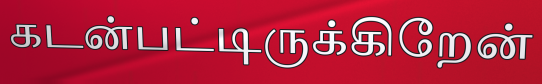
கடன்பட்டிருக்கிறேன்